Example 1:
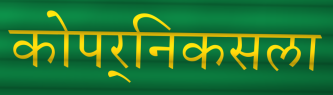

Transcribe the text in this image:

कोपर्निकसला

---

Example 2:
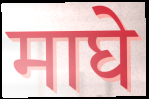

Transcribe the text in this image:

माघे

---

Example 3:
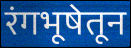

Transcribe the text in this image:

रंगभूषेतून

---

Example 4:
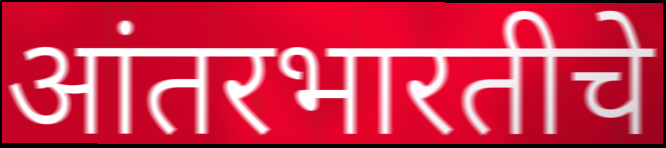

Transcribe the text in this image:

आंतरभारतीचे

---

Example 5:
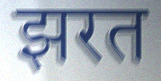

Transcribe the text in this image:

झरत